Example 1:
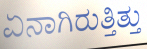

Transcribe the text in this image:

ಏನಾಗಿರುತ್ತಿತ್ತು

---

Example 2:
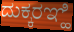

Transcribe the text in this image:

ದುಕ್ಕರಞ್ಹಿ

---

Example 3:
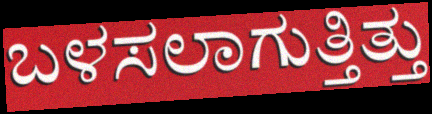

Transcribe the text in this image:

ಬಳಸಲಾಗುತ್ತಿತ್ತು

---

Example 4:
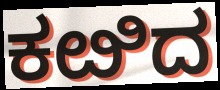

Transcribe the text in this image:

ಕೞಿದ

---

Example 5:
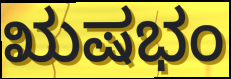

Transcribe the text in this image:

ಋಷಭಂ